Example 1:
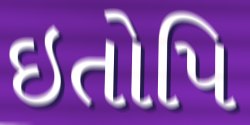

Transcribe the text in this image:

ઇતોપિ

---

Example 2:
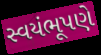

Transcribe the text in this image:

સ્વયંભૂપણે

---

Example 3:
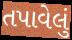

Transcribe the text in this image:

તપાવેલું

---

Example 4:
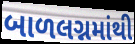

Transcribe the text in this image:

બાળલગ્નમાંથી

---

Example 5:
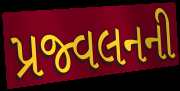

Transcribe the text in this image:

પ્રજ્વલનની